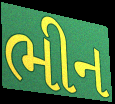
ભીન